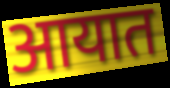
आयात